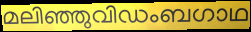
മലിഞ്ഞുവിഡംബഗാഥ